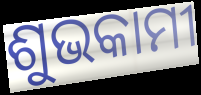
ଶୁଭକାମୀ